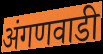
अंगणवाडी